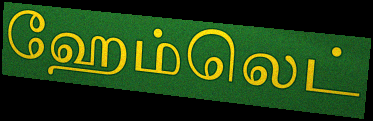
ஹேம்லெட்